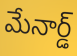
మేనార్డ్